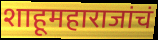
शाहूमहाराजांचं